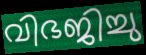
വിഭജിച്ചു